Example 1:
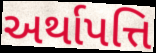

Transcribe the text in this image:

અર્થાપત્તિ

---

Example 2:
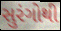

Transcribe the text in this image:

સુરંગોથી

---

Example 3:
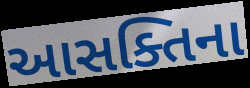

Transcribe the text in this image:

આસક્તિના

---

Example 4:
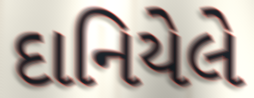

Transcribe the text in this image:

દાનિયેલે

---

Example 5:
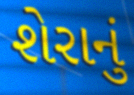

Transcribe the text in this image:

શેરાનું